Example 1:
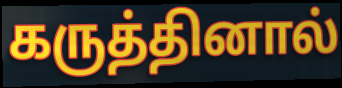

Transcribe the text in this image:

கருத்தினால்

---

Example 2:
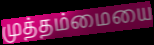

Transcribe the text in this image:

முத்தம்மையை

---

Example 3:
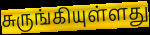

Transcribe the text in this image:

சுருங்கியுள்ளது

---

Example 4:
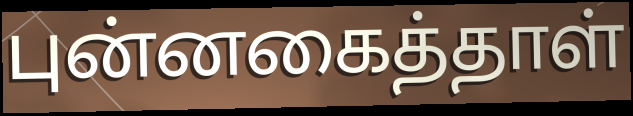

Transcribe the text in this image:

புன்னகைத்தாள்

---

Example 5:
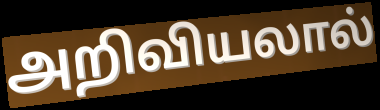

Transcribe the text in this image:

அறிவியலால்